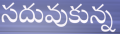
సదువుకున్న